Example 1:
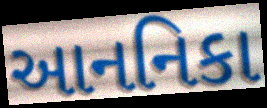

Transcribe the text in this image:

આનનિકા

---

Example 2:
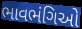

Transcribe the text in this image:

ભાવભંગિઓ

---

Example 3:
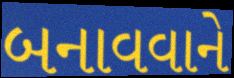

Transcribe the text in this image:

બનાવવાને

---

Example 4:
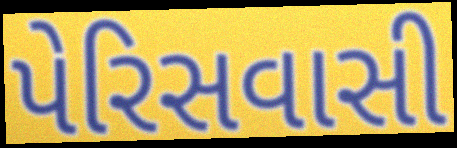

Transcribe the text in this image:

પેરિસવાસી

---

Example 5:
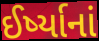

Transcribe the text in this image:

ઈર્ષ્યાનાં